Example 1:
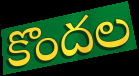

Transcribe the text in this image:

కొందల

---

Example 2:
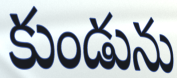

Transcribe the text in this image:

కుండును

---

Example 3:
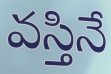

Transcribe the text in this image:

వస్తినే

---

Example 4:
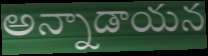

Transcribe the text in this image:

అన్నాడాయన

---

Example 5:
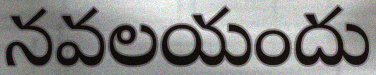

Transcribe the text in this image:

నవలయందు